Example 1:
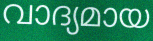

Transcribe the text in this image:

വാദ്യമായ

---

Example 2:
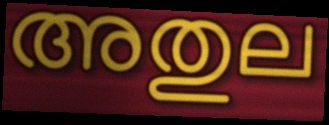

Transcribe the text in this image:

അതുല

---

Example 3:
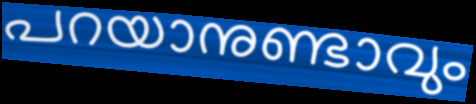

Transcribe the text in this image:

പറയാനുണ്ടാവും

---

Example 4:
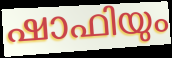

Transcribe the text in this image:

ഷാഫിയും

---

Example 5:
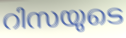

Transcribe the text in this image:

റിസയുടെ